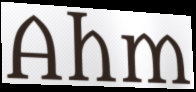
Ahm